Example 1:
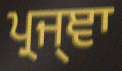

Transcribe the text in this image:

ਪ੍ਰਜ੍ਞਾ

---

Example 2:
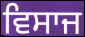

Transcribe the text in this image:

ਵਿਸਾਜ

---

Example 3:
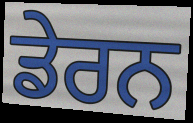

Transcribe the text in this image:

ਡੇਰਨ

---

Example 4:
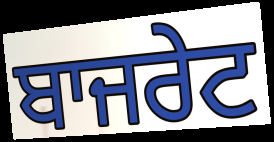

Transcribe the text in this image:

ਬਾਜਰੇਟ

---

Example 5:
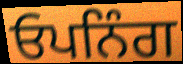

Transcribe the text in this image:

ਓਪਨਿੰਗ